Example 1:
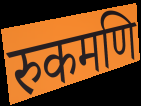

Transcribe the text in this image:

रुकमणि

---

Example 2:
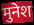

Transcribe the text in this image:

मुनेश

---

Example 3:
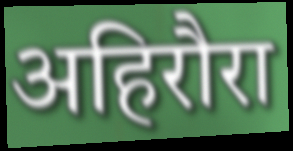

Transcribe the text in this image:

अहिरौरा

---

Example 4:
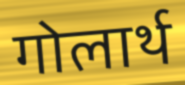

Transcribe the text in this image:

गोलार्थ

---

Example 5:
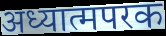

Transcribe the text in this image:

अध्यात्मपरक